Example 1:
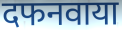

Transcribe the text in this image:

दफनवाया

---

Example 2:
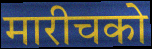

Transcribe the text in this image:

मारीचको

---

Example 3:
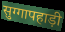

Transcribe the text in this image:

सुग्गापहाड़ी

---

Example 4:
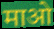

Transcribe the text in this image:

माओ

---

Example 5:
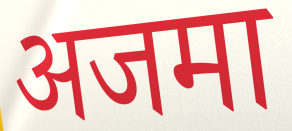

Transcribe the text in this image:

अजमा